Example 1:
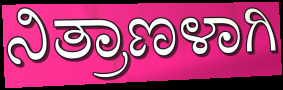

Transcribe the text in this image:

ನಿತ್ರಾಣಳಾಗಿ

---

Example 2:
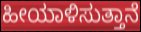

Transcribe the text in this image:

ಹೀಯಾಳಿಸುತ್ತಾನೆ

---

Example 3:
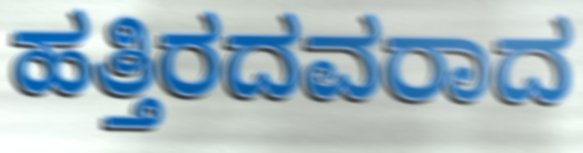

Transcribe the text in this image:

ಹತ್ತಿರದವರಾದ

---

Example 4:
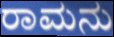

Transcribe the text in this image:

ರಾಮನು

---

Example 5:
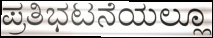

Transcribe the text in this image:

ಪ್ರತಿಭಟನೆಯಲ್ಲೂ